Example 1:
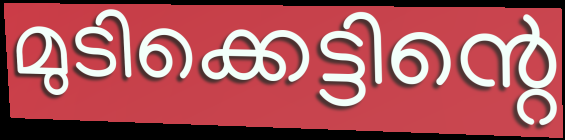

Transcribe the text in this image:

മുടിക്കെട്ടിന്റെ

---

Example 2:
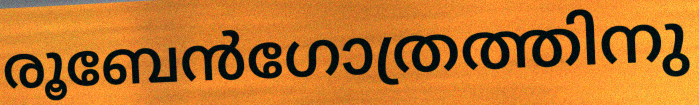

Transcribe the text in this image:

രൂബേൻഗോത്രത്തിനു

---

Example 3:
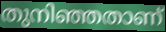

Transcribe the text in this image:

തുനിഞ്ഞതാണ്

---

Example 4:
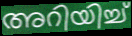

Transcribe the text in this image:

അറിയിച്ച്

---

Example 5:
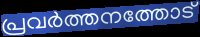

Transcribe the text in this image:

പ്രവർത്തനത്തോട്